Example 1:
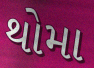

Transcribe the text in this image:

થોમા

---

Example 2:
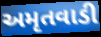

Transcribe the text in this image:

અમૃતવાડી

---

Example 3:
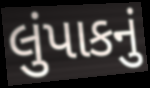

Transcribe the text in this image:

લુંપાકનું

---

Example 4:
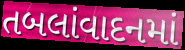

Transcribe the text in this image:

તબલાંવાદનમાં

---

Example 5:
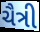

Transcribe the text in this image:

ચૈત્રી